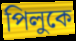
পিলুকে